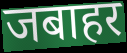
जबाहर